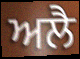
ਅਲੈ